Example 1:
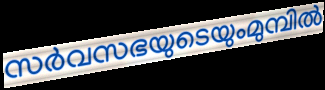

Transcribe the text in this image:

സർവസഭയുടെയുംമുമ്പിൽ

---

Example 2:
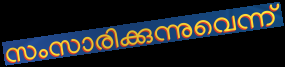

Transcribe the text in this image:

സംസാരിക്കുന്നുവെന്ന്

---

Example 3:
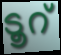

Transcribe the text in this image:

ടൂറ്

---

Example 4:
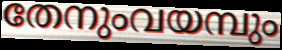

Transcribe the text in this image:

തേനുംവയമ്പും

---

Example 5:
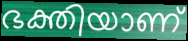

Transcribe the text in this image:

ഭക്തിയാണ്